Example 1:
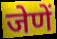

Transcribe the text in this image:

जेणें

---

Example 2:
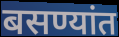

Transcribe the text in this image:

बसण्यांत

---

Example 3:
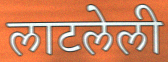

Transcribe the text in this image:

लाटलेली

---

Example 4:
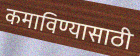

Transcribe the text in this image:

कमाविण्यासाठी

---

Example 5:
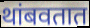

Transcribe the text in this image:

थांबवतात